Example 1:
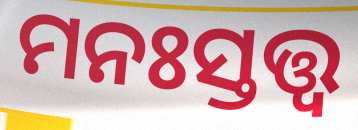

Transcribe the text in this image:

ମନଃସ୍ତତ୍ତ୍ଵ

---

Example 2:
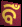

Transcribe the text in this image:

ବିଁ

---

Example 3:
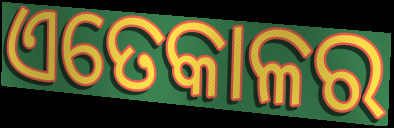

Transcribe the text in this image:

ଏତେକାଳର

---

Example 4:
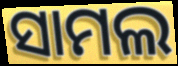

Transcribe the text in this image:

ସାମଲ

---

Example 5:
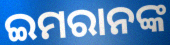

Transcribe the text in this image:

ଇମରାନଙ୍କ